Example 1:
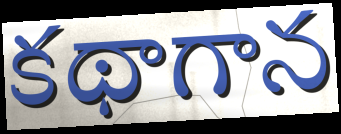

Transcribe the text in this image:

కథాగాన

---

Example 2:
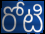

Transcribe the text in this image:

రోటి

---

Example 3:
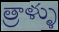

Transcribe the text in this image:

త్రాళ్ళు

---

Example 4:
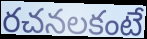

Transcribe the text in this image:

రచనలకంటే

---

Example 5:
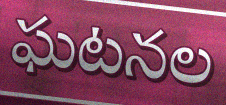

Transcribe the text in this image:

ఘటనల